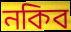
নকিব